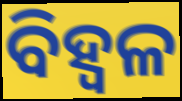
ବିହ୍ଵଳ